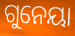
ଗୁନେୟା